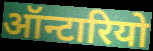
ऑन्टारियो